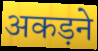
अकड़ने